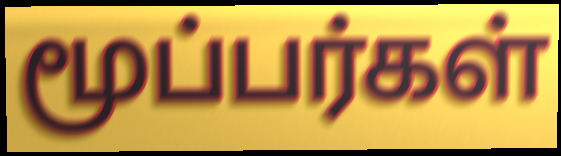
மூப்பர்கள்